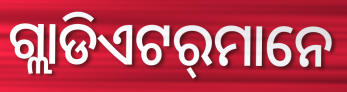
ଗ୍ଲାଡିଏଟର୍‍ମାନେ